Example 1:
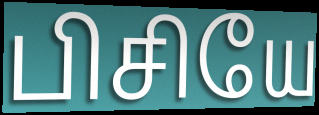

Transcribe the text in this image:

பிசியே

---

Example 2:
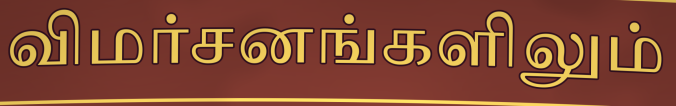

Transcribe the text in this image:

விமர்சனங்களிலும்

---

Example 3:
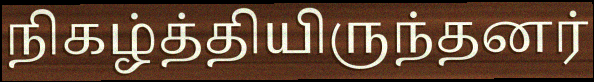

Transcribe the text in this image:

நிகழ்த்தியிருந்தனர்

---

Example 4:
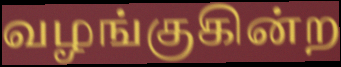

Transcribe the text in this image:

வழங்குகின்ற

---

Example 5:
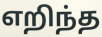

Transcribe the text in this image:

எறிந்த